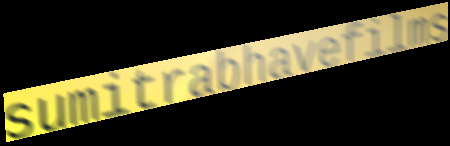
sumitrabhavefilms